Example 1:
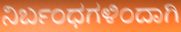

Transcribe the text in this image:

ನಿರ್ಬಂಧಗಳಿಂದಾಗಿ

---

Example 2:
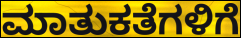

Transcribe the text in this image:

ಮಾತುಕತೆಗಳಿಗೆ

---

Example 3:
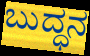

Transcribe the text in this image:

ಬುದ್ಧನ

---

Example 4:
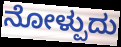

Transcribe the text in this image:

ನೋಳ್ಪುದು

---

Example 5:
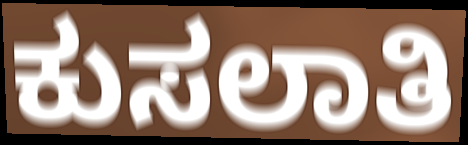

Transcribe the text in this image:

ಕುಸಲಾತಿ